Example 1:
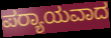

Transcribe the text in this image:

ಪರ‍್ಯಾಯವಾದ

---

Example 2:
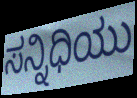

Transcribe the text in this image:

ಸನ್ನಿಧಿಯು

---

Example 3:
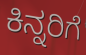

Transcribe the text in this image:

ಕಿನ್ನರಿಗೆ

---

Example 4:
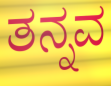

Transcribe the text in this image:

ತನ್ನವ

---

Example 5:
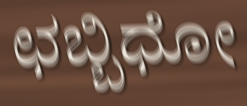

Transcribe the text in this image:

ಛಬ್ಬಿಧೋ